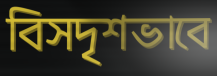
বিসদৃশভাবে